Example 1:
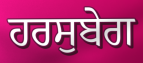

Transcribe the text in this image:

ਹਰਸੁਬੇਗ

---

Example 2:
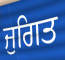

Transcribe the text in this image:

ਜੁਗਿਤ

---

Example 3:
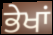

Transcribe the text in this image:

ਭੇਖਾਂ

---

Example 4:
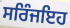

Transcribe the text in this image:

ਸਰਿੰਜਇਹ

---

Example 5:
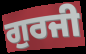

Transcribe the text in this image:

ਗੁਰਜੀ